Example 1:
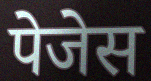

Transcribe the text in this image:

पेजेस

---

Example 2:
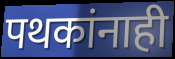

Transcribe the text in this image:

पथकांनाही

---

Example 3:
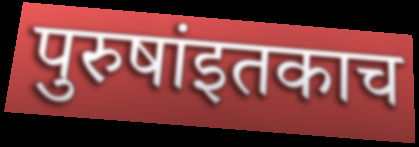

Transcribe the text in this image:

पुरुषांइतकाच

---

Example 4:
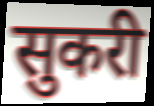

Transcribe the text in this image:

सुकरी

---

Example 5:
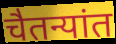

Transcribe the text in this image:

चैतन्यांत